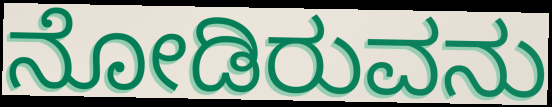
ನೋಡಿರುವನು